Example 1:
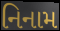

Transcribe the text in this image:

નિનામ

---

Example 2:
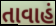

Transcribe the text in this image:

તાવાહં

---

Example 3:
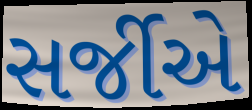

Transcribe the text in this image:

સર્જીએ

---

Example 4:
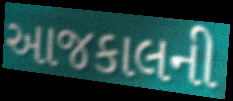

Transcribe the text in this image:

આજકાલની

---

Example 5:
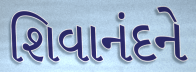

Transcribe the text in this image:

શિવાનંદને